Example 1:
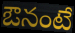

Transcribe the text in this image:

ఔనంటే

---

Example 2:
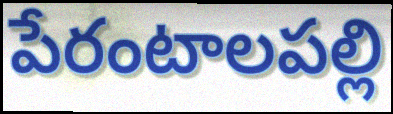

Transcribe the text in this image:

పేరంటాలపల్లి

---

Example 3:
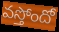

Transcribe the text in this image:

వస్తోందో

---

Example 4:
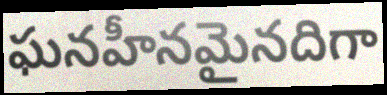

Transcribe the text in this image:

ఘనహీనమైనదిగా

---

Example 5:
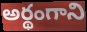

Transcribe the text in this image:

అర్థంగాని